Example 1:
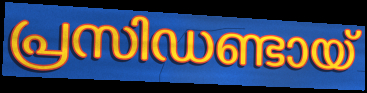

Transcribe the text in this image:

പ്രസിഡണ്ടായ്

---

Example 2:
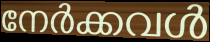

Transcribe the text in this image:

നേർക്കവൾ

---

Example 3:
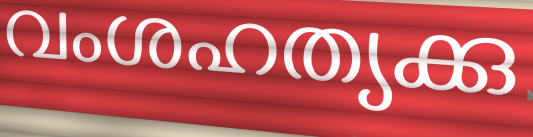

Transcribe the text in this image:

വംശഹത്യക്കു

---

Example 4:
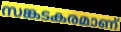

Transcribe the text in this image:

സങ്കടകരമാണ്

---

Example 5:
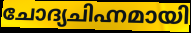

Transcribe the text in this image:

ചോദ്യചിഹ്നമായി